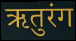
ऋतुरंग